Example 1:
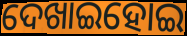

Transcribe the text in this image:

ଦେଖାଇହୋଇ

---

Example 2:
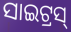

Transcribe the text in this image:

ସାଇଟ୍ରସ୍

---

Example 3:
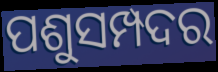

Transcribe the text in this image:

ପଶୁସମ୍ପଦର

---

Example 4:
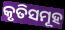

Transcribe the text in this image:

କୃତିସମୂହ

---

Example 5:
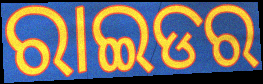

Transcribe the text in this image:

ରାଇଡର